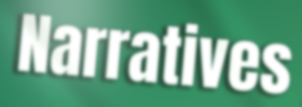
Narratives